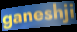
ganeshji